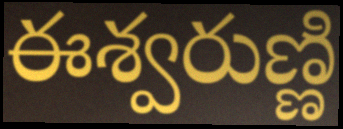
ఈశ్వరుణ్ణి